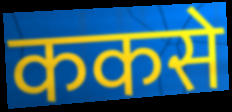
ककसे